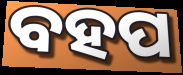
ବହପ